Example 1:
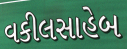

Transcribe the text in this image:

વકીલસાહેબ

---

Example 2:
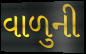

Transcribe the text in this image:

વાળુની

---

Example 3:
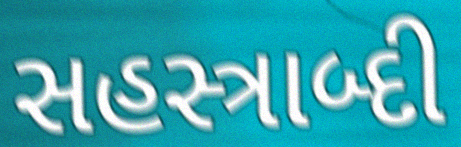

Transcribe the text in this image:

સહસ્ત્રાબ્દી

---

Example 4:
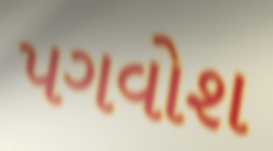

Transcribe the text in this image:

પગવોશ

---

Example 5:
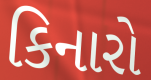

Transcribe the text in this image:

કિનારો